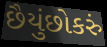
છૈયુંછોકરું